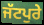
ਜੱਟਪੁਰੇ